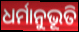
ଧର୍ମାନୁଭୂତି